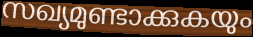
സഖ്യമുണ്ടാക്കുകയും